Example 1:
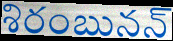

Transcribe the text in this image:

శిరంబునన్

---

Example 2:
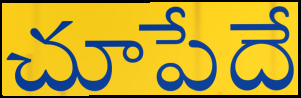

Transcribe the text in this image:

చూపేదే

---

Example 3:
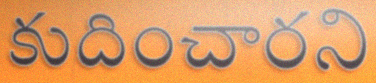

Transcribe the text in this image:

కుదించారని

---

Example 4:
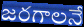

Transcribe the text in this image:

జరగాలనే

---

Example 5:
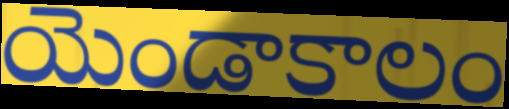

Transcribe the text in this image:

యెండాకాలం